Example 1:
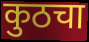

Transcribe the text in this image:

कुठचा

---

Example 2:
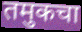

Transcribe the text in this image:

तमुकचा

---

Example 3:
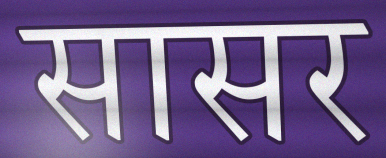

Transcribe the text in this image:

सासर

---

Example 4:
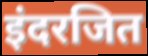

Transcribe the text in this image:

इंदरजित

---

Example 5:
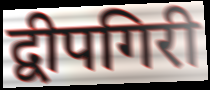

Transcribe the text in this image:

द्वीपगिरी